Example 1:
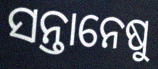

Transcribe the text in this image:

ସନ୍ତାନେଷୁ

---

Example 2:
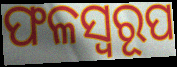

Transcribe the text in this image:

ଫଳସ୍ୱରୂପ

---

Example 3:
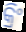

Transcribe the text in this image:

କ୍ରିଂ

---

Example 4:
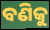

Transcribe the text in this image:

ବଣିକୁ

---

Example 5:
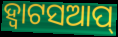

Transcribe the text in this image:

ହ୍ବାଟସଆପ୍